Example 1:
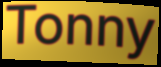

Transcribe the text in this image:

Tonny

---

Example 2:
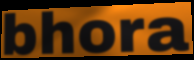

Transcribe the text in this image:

bhora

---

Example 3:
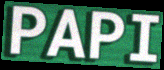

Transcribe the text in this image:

PAPI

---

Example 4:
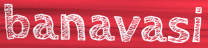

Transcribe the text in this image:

banavasi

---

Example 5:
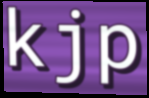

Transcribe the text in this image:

kjp